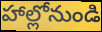
హాల్లోనుండి